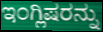
ಇಂಗ್ಲಿಷರನ್ನು